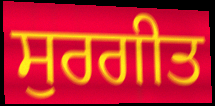
ਸੁਰਗੀਤ